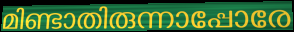
മിണ്ടാതിരുന്നാപ്പോരേ